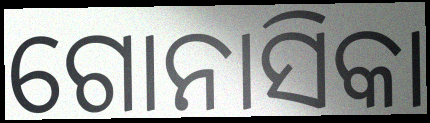
ଗୋନାସିକା